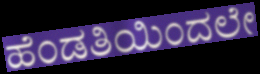
ಹೆಂಡತಿಯಿಂದಲೇ